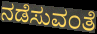
ನಡೆಸುವಂತೆ